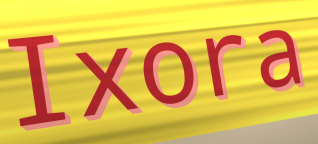
Ixora